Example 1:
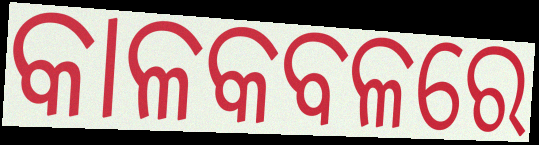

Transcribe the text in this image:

କାଳକବଳରେ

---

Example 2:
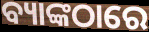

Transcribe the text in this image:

ବ୍ୟାଙ୍କଠାରେ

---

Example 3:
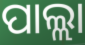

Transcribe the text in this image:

ପାଲ୍ଲା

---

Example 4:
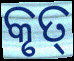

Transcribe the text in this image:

କୃତ୍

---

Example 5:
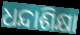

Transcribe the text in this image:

ଧନ୍ଦାଶିକ୍ଷା